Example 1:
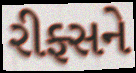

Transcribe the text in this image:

રીફ્સને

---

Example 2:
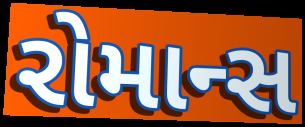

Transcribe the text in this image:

રોમાન્સ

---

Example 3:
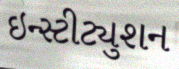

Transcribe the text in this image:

ઇન્સ્ટીટ્યુશન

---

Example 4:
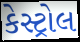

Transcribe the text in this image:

કેસ્ટ્રોલ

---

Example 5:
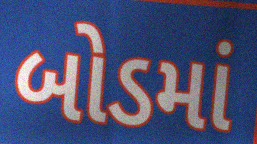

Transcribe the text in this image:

બોડમાં